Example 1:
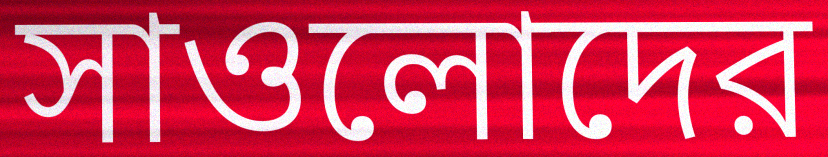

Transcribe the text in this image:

সাওলোদের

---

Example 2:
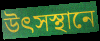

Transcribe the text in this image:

উৎসস্থানে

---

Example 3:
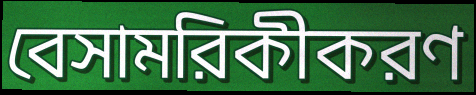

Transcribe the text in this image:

বেসামরিকীকরণ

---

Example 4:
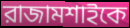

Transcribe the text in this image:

রাজামশাইকে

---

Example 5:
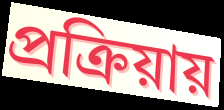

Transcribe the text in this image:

প্রক্রিয়ায়